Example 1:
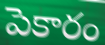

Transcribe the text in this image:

పెకారం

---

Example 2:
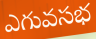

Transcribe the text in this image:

ఎగువసభ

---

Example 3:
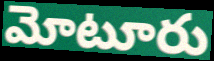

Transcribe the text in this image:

మోటూరు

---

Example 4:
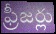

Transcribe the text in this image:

ఫ్రీజర్లు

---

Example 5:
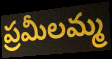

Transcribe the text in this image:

ప్రమీలమ్మ